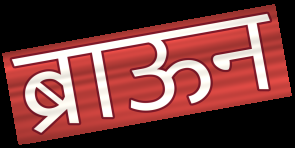
ब्राऊन